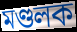
মণ্ডলক